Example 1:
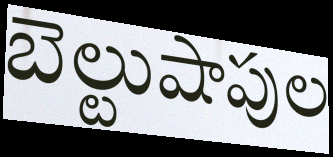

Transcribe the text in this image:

బెల్టుషాపుల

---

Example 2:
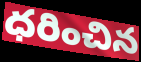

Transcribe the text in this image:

ధరించిన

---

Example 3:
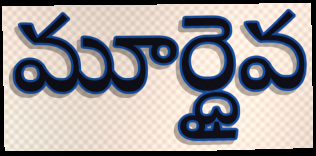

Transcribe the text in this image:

మూర్ధైవ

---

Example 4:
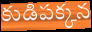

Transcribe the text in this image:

కుడిపక్కన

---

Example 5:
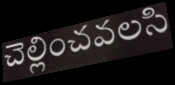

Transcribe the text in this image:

చెల్లించవలసి